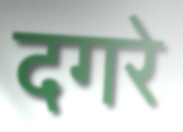
दगरे